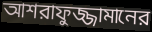
আশরাফুজ্জামানের